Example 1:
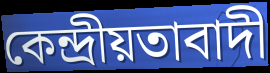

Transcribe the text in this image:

কেন্দ্ৰীয়তাবাদী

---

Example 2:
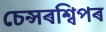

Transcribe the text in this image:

চেন্সৰশ্বিপৰ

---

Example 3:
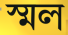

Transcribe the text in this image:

স্মল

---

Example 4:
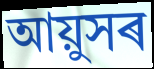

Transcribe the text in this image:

আয়ুসৰ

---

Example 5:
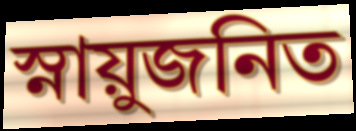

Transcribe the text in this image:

স্নায়ুজনিত